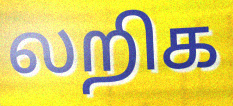
லறிக